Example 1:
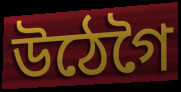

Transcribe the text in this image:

উঠেগৈ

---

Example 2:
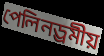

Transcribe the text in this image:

পেলিনড্ৰমীয়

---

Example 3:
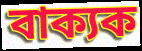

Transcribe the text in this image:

বাক্যক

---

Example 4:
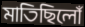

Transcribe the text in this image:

মাতিছিলোঁ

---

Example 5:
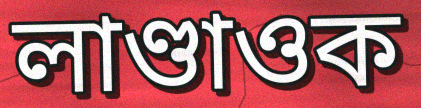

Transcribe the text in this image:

লাণ্ডাওক